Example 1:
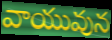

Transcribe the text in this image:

వాయువున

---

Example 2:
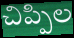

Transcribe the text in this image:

చిప్పిల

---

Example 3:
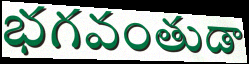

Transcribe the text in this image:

భగవంతుడా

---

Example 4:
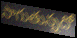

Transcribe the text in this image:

సాగుతున్నదో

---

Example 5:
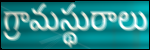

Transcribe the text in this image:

గ్రామస్థురాలు